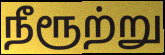
நீரூற்று